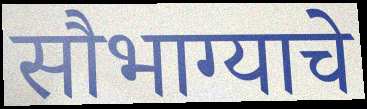
सौभाग्याचे